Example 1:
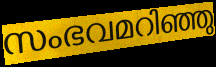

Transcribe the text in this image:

സംഭവമറിഞ്ഞു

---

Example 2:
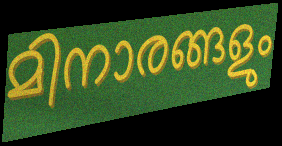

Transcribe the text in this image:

മിനാരങ്ങളും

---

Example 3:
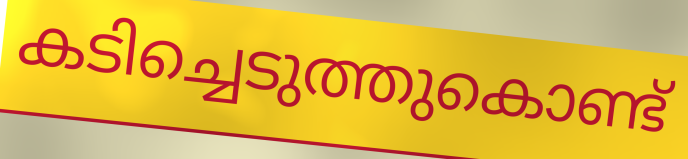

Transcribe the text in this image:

കടിച്ചെടുത്തുകൊണ്ട്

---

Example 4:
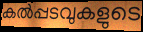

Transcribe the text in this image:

കൽപ്പടവുകളുടെ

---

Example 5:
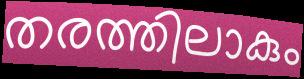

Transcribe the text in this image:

തരത്തിലാകും